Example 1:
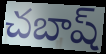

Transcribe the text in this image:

చబాష్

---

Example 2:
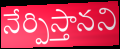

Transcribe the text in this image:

నేర్పిస్తానని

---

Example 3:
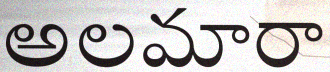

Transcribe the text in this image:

అలమారా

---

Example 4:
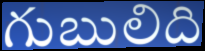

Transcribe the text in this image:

గుబులిది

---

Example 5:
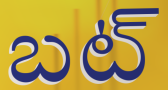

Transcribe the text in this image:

బట్